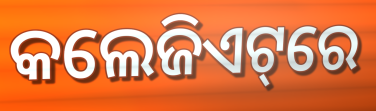
କଲେଜିଏଟ୍‌ରେ